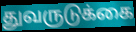
துவருடுக்கை